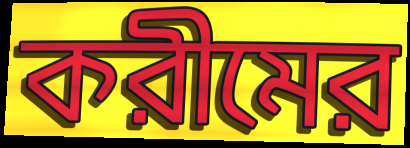
করীমের